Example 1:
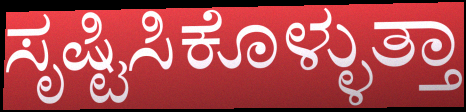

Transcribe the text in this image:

ಸೃಷ್ಟಿಸಿಕೊಳ್ಳುತ್ತಾ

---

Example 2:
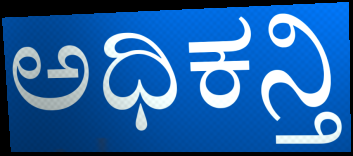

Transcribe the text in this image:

ಅಧಿಕನ್ತಿ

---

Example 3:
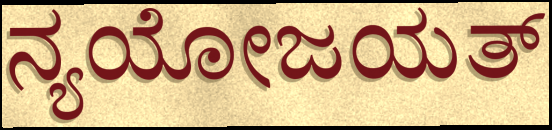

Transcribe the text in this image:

ನ್ಯಯೋಜಯತ್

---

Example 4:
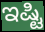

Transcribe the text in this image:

ಇಷ್ಟಿ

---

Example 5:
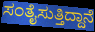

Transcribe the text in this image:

ಸಂತೈಸುತ್ತಿದ್ದಾನೆ